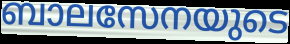
ബാലസേനയുടെ